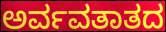
ಅರ್ವವತಾತದ